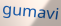
gumavi